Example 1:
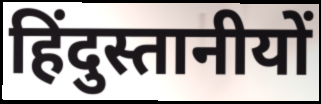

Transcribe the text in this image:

हिंदुस्तानीयों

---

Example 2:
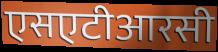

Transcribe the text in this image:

एसएटीआरसी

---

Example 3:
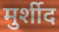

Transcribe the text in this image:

मुर्शीद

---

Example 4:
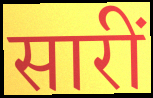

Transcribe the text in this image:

सारीं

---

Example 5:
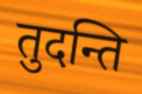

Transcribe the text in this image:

तुदन्ति